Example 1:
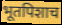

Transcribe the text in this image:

भूतपिशाच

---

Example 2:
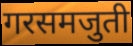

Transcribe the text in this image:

गरसमजुती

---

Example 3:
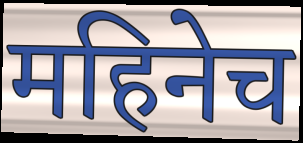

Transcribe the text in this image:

महिनेच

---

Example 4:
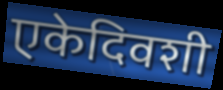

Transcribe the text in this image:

एकेदिवशी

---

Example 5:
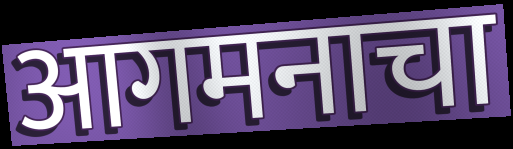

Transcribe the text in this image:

आगमनाचा